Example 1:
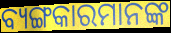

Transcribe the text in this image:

ବ୍ୟଙ୍ଗକାରମାନଙ୍କ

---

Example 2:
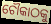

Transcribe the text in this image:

ଚୌକାଠକୁ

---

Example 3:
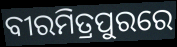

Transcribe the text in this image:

ବୀରମିତ୍ରପୁରରେ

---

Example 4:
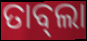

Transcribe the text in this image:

ତାବ୍‌ଲା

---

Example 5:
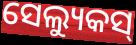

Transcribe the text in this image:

ସେଲ୍ୟୁକସ୍